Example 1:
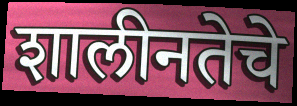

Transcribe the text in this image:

शालीनतेचे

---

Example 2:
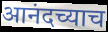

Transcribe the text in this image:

आनंदच्याच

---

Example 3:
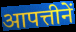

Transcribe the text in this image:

आपत्तीनें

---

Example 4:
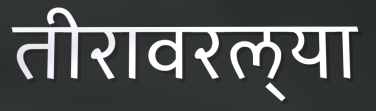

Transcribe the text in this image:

तीरावरल्या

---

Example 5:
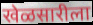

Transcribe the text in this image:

खेळसारीला